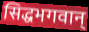
सिद्धभगवान्